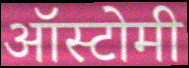
ऑस्टोमी